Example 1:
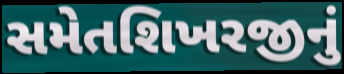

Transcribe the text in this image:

સમેતશિખરજીનું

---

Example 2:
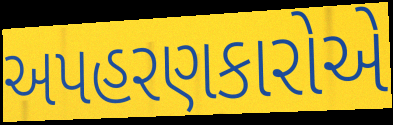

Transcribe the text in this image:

અપહરણકારોએ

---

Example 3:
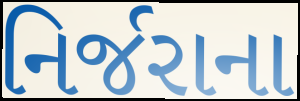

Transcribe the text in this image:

નિર્જરાના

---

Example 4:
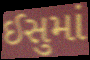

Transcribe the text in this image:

ઈસુમાં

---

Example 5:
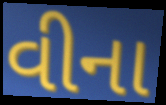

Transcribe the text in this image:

વીના